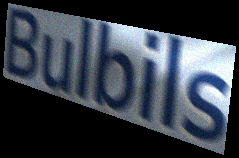
Bulbils